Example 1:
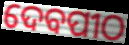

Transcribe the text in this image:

ଦେବପୀଠ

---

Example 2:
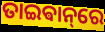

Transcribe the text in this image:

ତାଇଵାନ୍‌ରେ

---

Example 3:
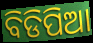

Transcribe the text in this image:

ବିଡିପିଆ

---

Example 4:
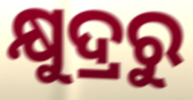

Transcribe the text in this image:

କ୍ଷୁଦ୍ରରୁ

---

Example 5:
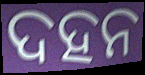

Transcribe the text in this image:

ଦହନ